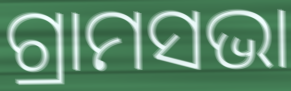
ଗ୍ରାମସଭା